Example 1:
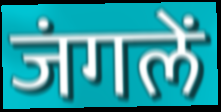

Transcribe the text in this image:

जंगलें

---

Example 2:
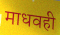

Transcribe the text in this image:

माधवही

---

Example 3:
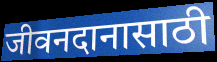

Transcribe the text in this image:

जीवनदानासाठी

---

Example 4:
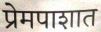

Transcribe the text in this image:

प्रेमपाशात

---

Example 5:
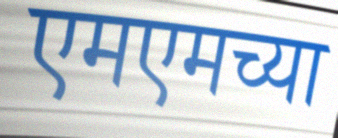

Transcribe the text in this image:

एमएमच्या